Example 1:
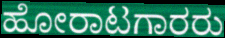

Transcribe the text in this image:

ಹೋರಾಟಗಾರರು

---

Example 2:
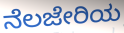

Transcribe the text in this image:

ನೆಲಜೇರಿಯ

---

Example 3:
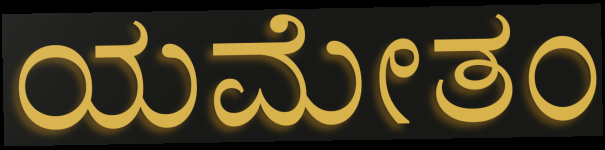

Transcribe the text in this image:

ಯಮೇತಂ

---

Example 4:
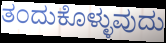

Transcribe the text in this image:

ತಂದುಕೊಳ್ಳುವುದು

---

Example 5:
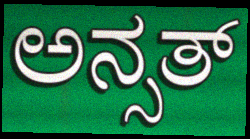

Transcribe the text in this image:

ಅನ್ಸತ್